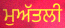
ਮੁਅੱਤਲੀ